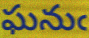
ఘనుఁ